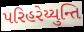
પરિહરેય્યુન્તિ